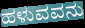
ಹಳುವವನು